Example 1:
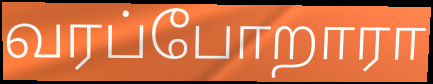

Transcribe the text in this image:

வரப்போறாரா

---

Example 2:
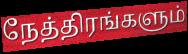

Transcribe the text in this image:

நேத்திரங்களும்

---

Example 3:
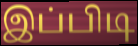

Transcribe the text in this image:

இப்பிடி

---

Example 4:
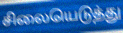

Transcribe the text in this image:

சிலையெடுத்து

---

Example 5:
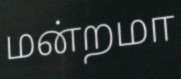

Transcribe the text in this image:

மன்றமா